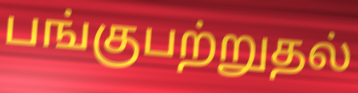
பங்குபற்றுதல்